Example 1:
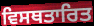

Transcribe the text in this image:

ਵਿਸਥਤਾਰਿਤ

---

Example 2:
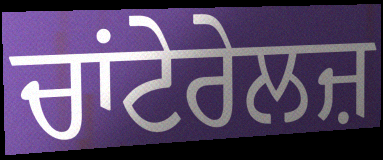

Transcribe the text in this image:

ਚਾਂਟੇਰੇਲਜ਼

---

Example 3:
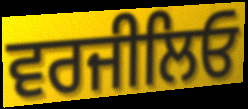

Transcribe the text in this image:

ਵਰਜੀਲਿਓ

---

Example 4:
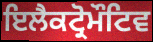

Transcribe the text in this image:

ਇਲੈਕਟ੍ਰੋਮੌਟਿਵ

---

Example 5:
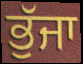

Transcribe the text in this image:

ਭੁੱਜਾ